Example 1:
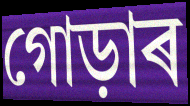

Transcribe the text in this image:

গোড়াৰ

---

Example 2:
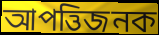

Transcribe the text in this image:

আপত্তিজনক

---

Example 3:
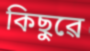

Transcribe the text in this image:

কিছুৱে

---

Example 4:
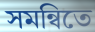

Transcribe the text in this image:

সমন্বিতে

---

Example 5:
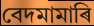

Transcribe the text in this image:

বেদমামাৰি